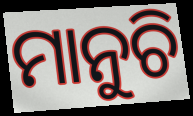
ମାନୁଚି